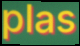
plas